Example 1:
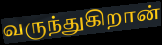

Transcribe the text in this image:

வருந்துகிறான்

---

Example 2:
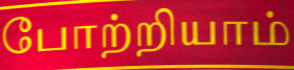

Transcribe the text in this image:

போற்றியாம்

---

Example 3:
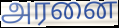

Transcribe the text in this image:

அரனை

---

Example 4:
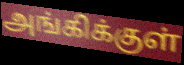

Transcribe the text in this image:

அங்கிக்குள்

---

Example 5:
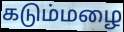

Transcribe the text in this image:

கடும்மழை